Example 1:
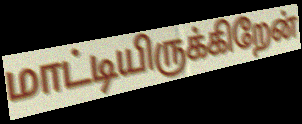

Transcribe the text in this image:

மாட்டியிருக்கிறேன்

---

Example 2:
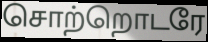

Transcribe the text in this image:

சொற்றொடரே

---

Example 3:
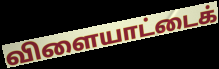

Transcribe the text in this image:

விளையாட்டைக்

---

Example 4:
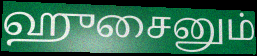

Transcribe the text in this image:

ஹுசைனும்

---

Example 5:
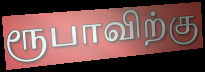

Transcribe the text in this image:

ரூபாவிற்கு